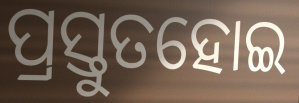
ପ୍ରସ୍ତୁତହୋଇ